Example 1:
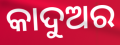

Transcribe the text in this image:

କାଦୁଅର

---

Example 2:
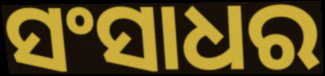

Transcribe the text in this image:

ସଂସାଧର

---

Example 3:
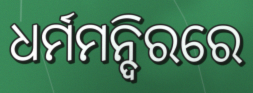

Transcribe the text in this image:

ଧର୍ମମନ୍ଦିରରେ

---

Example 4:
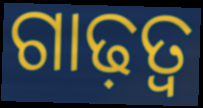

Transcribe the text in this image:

ଗାଢ଼ତ୍ବ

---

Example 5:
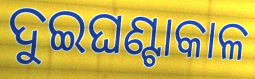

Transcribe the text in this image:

ଦୁଇଘଣ୍ଟାକାଳ